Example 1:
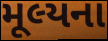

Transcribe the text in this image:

મૂલ્યના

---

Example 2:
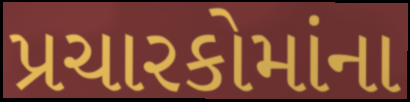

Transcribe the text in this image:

પ્રચારકોમાંના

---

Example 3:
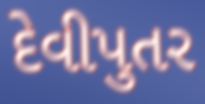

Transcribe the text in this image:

દેવીપુતર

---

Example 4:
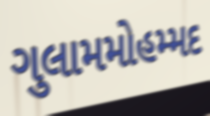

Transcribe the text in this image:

ગુલામમોહમ્મદ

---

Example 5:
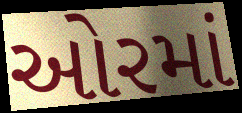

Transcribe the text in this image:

ઓરમાં